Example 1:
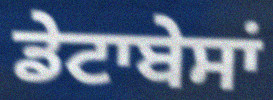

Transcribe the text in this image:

ਡੇਟਾਬੇਸਾਂ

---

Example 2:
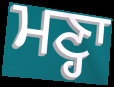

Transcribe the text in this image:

ਮਣ੍ਹਾ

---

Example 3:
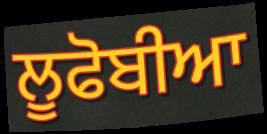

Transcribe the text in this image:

ਲੂਫੋਬੀਆ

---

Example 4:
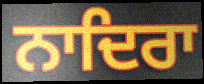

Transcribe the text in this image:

ਨਾਦਿਰਾ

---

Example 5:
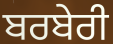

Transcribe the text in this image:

ਬਰਬੇਰੀ